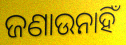
ଜଣାଉନାହିଁ